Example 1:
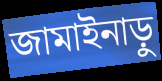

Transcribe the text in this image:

জামাইনাড়ু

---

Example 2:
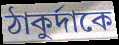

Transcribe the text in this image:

ঠাকুর্দাকে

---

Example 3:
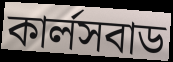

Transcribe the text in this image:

কার্লসবাড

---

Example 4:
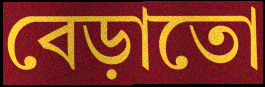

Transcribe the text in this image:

বেড়াতো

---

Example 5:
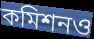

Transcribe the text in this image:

কমিশনও